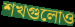
শখগুলোও